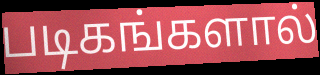
படிகங்களால்